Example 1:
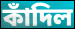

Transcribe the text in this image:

কাঁদিল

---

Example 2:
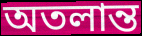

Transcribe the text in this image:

অতলান্ত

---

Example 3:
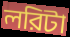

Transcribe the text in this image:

লরিটা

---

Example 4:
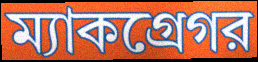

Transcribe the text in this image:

ম্যাকগ্রেগর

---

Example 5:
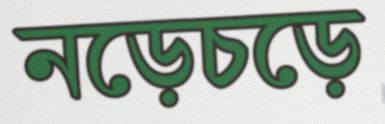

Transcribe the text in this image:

নড়েচড়ে